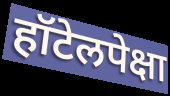
हॉटेलपेक्षा